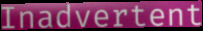
Inadvertent